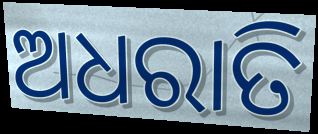
ଅଧରାତି